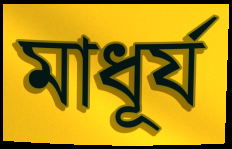
মাধূর্য